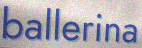
ballerina